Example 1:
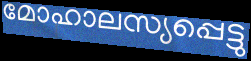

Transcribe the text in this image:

മോഹാലസ്യപ്പെട്ടു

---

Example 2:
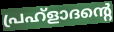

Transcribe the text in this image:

പ്രഹ്ളാദന്റെ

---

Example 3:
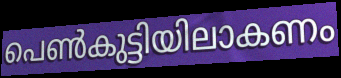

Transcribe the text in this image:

പെൺകുട്ടിയിലാകണം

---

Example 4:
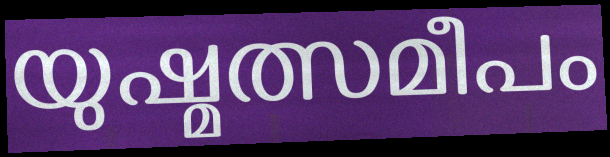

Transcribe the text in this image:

യുഷ്മത്സമീപം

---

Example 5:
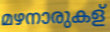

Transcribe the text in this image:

മഴനാരുകള്